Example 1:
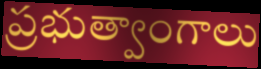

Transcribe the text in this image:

ప్రభుత్వాంగాలు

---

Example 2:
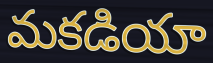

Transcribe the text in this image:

మకడియా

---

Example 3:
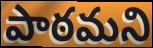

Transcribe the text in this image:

పాఠమని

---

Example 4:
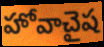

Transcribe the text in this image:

హోవాచైష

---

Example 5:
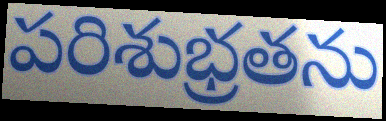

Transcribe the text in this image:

పరిశుభ్రతను